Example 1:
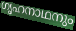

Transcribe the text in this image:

ഗൃഹനാഥനും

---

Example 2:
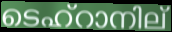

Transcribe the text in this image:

ടെഹ്റാനില്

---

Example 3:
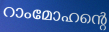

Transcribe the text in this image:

റാംമോഹന്റെ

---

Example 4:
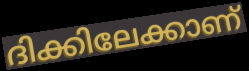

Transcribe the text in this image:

ദിക്കിലേക്കാണ്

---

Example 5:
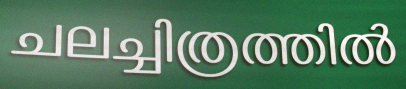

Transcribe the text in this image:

ചലച്ചിത്രത്തിൽ